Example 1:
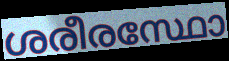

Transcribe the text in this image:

ശരീരസ്ഥോ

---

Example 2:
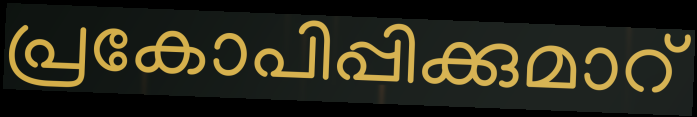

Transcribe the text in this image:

പ്രകോപിപ്പിക്കുമാറ്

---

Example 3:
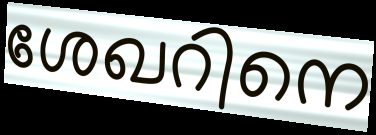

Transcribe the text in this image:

ശേഖറിനെ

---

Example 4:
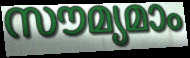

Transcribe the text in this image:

സൗമ്യമാം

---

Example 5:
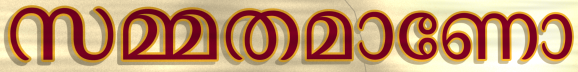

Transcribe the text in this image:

സമ്മതമാണോ